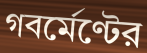
গবর্মেণ্টের